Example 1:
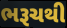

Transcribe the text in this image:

ભરૂચથી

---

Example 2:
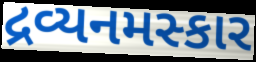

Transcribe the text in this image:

દ્રવ્યનમસ્કાર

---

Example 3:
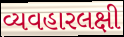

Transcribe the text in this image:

વ્યવહારલક્ષી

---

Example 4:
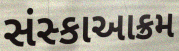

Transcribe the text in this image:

સંસ્કાઆક્રમ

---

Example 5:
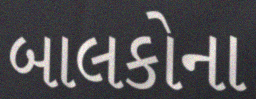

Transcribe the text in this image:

બાલકોના